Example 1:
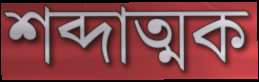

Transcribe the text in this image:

শব্দাত্মক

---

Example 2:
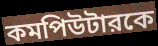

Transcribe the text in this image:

কমপিউটারকে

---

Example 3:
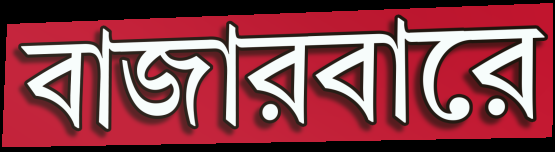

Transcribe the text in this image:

বাজারবারে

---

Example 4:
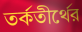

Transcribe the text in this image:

তর্কতীর্থের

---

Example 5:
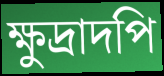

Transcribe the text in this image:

ক্ষুদ্রাদপি